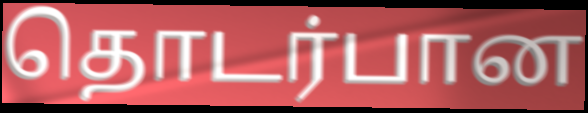
தொடர்பான